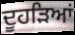
ਦੂਹੜਿਆਂ